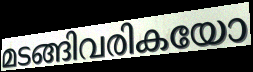
മടങ്ങിവരികയോ